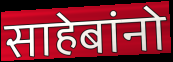
साहेबांनो